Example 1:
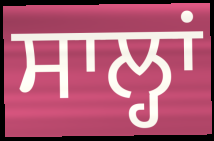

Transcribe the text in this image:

ਸਾਲ੍ਹਾਂ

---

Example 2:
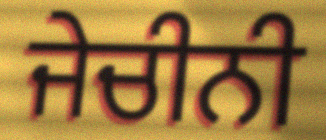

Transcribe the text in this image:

ਜੇਚੀਨੀ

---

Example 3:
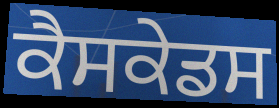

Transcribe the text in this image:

ਕੈਸਕੇਡਸ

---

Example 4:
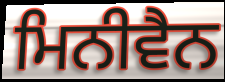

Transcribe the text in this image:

ਮਿਨੀਵੈਨ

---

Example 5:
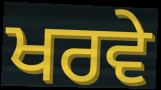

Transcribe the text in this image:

ਖਰਵੇ